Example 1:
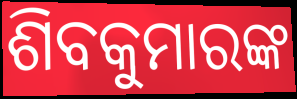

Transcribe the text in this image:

ଶିବକୁମାରଙ୍କ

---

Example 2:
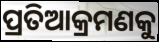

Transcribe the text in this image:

ପ୍ରତିଆକ୍ରମଣକୁ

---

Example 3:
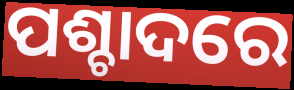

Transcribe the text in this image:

ପଶ୍ଚାଦରେ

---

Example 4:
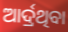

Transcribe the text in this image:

ଆର୍ଦ୍ରଥିବା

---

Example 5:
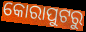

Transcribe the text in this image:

କୋରାପୁଟରୁ